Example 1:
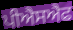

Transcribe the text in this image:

ਪੀਐਸਐਫ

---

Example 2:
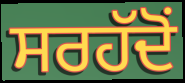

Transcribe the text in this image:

ਸਰਹੱਦੋਂ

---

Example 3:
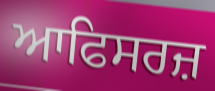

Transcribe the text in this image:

ਆਫਿਸਰਜ਼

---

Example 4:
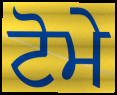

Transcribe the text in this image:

ਟੋਮੇ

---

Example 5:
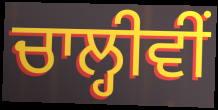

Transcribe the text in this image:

ਚਾਲ੍ਹੀਵੀਂ